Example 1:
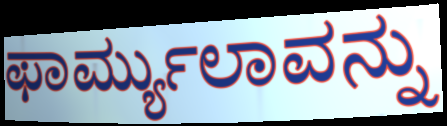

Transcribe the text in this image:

ಫಾರ್ಮ್ಯುಲಾವನ್ನು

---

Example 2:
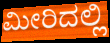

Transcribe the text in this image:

ಮೀರಿದಲ್ಲಿ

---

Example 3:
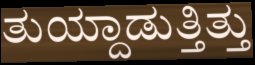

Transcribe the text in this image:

ತುಯ್ದಾಡುತ್ತಿತ್ತು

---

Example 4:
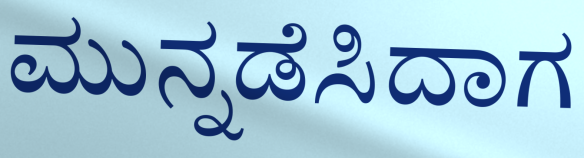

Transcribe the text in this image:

ಮುನ್ನಡೆಸಿದಾಗ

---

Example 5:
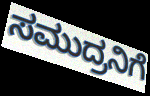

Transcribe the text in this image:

ಸಮುದ್ರನಿಗೆ